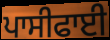
ਪਾਸੀਫਾਈ